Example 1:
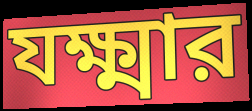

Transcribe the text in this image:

যক্ষ্মার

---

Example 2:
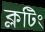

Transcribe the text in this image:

ক্লটিং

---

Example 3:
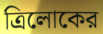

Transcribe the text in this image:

ত্রিলোকের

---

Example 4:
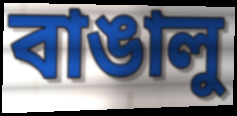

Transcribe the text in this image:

বাঙালু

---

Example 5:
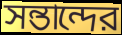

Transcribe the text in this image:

সন্তান্দের